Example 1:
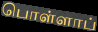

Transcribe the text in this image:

பொள்ளாப்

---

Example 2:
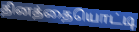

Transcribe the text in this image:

தினத்தையொட்டி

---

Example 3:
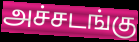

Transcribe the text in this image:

அச்சடங்கு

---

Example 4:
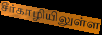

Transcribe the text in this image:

சீர்காழியிலுள்ள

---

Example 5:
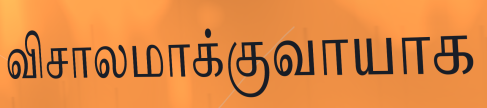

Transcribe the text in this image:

விசாலமாக்குவாயாக